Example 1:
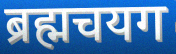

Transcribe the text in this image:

ब्रह्मचयग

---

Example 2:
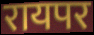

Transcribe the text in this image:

रायपर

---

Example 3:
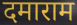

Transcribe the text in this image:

दमाराम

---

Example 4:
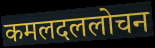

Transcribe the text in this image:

कमलदललोचन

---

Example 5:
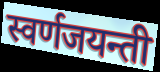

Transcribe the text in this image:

स्वर्णजयन्ती